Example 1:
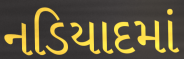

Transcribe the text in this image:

નડિયાદમાં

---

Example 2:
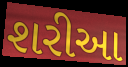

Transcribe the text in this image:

શરીઆ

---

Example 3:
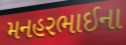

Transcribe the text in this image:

મનહરભાઈના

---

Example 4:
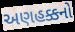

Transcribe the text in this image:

અણહક્કનો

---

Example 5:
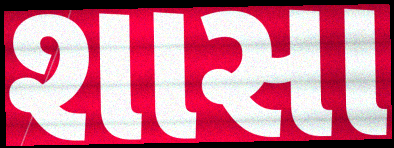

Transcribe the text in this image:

શાસા